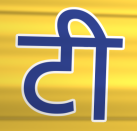
टी